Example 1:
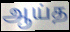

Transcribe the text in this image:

ஆய்த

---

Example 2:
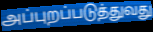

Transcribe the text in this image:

அப்புறப்படுத்துவது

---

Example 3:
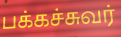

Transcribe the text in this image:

பக்கச்சுவர்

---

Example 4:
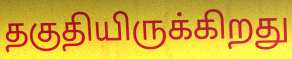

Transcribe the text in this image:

தகுதியிருக்கிறது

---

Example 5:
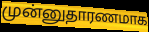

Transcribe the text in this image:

முன்னுதாரணமாக